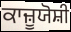
ਕਾਜ਼ੂਯੋਸ਼ੀ